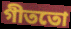
গীততো